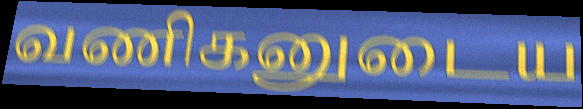
வணிகனுடைய